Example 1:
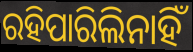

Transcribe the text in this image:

ରହିପାରିଲିନାହିଁ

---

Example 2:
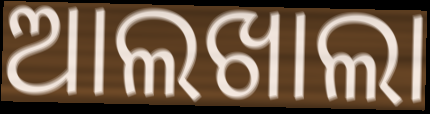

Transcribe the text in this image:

ଆଲଖାଲା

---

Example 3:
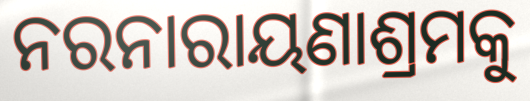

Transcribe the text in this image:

ନରନାରାୟଣାଶ୍ରମକୁ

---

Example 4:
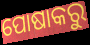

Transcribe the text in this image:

ପୋଷାକରୁ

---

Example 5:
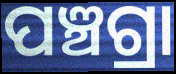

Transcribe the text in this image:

ପଞ୍ଚଗ୍ରା